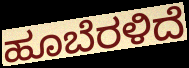
ಹೂಬೆರಳಿದೆ